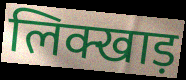
लिक्खाड़